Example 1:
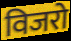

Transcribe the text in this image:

विजरो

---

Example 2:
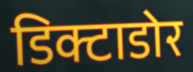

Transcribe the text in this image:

डिक्टाडोर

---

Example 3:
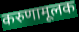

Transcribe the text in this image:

करुणामूलक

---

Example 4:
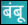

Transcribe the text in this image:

बंबू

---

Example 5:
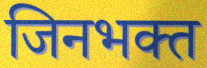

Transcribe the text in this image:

जिनभक्त